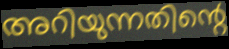
അറിയുന്നതിന്റെ